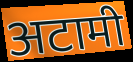
अटामी